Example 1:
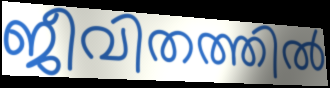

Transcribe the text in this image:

ജീവിതത്തിൽ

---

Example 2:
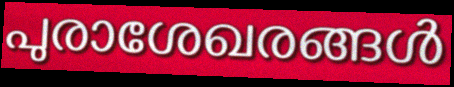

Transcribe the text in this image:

പുരാശേഖരങ്ങൾ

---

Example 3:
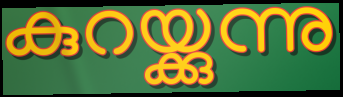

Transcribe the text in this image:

കുറയ്ക്കുന്നു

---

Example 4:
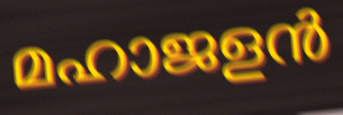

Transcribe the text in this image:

മഹാജളൻ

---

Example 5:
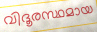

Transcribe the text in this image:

വിദൂരസ്ഥമായ